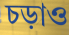
চড়াও